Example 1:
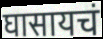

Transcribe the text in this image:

घासायचं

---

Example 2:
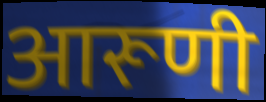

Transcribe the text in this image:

आरूणी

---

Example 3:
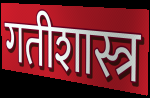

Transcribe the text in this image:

गतीशास्त्र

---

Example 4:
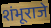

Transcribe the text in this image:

शंभूराजे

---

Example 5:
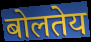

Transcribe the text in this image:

बोलतेय